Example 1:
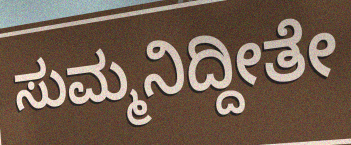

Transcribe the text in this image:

ಸುಮ್ಮನಿದ್ದೀತೇ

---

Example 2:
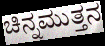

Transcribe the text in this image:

ಚಿನ್ನಮುತ್ತನ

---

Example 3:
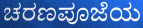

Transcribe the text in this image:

ಚರಣಪೂಜೆಯ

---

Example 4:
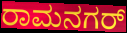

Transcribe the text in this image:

ರಾಮನಗರ್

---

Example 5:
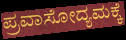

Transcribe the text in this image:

ಪ್ರವಾಸೋದ್ಯಮಕ್ಕೆ